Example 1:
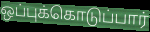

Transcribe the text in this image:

ஒப்புக்கொடுப்பார்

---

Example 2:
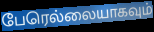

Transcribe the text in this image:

பேரெல்லையாகவும்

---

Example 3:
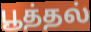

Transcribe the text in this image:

பூத்தல்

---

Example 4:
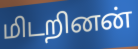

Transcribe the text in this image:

மிடறினன்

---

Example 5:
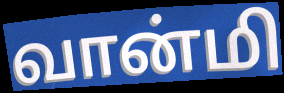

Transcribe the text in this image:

வான்மி